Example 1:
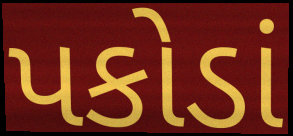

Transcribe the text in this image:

પકોડાં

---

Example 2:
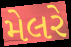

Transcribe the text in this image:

મેલરે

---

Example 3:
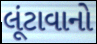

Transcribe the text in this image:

લૂંટાવાનો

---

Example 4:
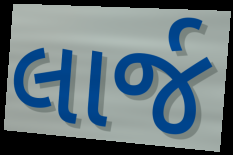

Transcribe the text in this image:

લાર્જ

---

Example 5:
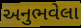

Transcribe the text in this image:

અનુભવેલા